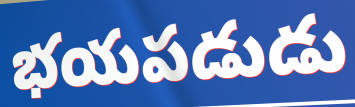
భయపడుడు